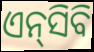
ଏନ୍‌ସିବି